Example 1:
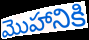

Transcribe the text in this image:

మొహానికి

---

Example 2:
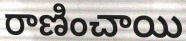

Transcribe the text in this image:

రాణించాయి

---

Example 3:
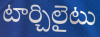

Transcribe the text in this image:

టార్చిలైటు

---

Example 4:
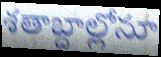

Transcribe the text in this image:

శతాబ్దాల్లోనూ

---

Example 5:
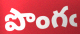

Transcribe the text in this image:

పొంగఁ